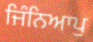
ਜਿੰਨਿਆਪੁ